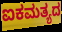
ಐಕಮತ್ಯದ